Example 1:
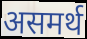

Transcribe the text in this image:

असमर्थ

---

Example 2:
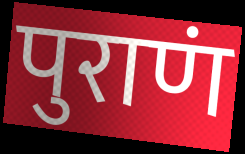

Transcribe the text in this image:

पुराणं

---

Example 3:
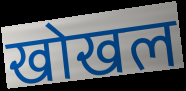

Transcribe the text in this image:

खोखल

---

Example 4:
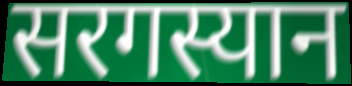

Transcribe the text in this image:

सरगस्यान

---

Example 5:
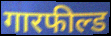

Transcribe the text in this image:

गारफील्ड